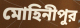
মোহিনীপুর